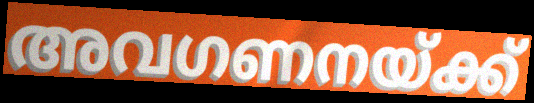
അവഗണനയ്ക്ക്